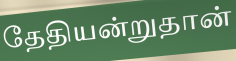
தேதியன்றுதான்